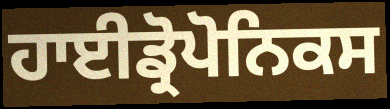
ਹਾਈਡ੍ਰੋਪੋਨਿਕਸ